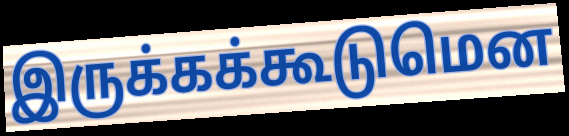
இருக்கக்கூடுமென